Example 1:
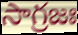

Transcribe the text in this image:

సాగ్రజః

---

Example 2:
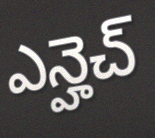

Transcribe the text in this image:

ఎన్హెచ్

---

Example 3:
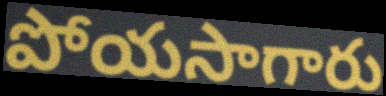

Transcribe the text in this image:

పోయసాగారు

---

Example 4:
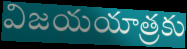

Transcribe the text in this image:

విజయయాత్రకు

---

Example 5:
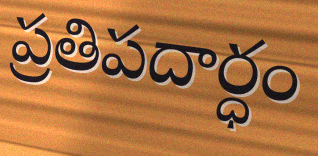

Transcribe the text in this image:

ప్రతిపదార్ధం